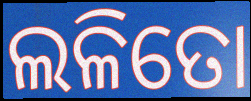
ଲଳିତୋ